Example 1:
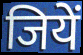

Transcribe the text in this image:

जियें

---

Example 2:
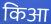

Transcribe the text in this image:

किआ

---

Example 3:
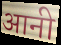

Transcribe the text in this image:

आनी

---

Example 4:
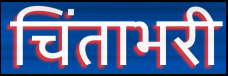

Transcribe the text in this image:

चिंताभरी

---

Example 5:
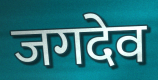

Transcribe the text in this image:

जगदेव